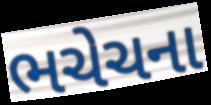
ભચેચના